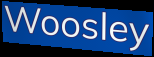
Woosley